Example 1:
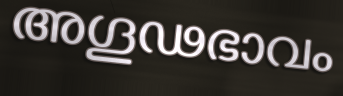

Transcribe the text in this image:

അഗൂഢഭാവം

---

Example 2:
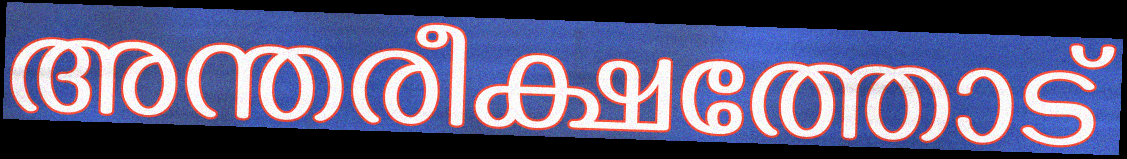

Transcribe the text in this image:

അന്തരീക്ഷത്തോട്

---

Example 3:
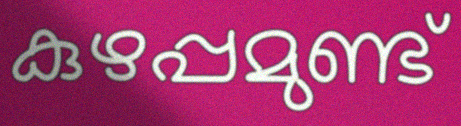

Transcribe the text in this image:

കുഴപ്പമുണ്ട്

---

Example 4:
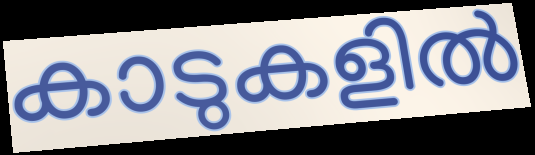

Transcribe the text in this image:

കാടുകളിൽ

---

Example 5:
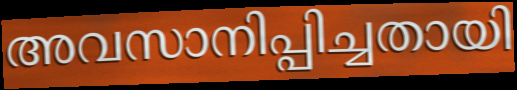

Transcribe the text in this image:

അവസാനിപ്പിച്ചതായി